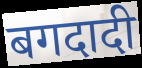
बगदादी